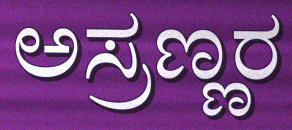
ಅಸ್ರಣ್ಣರ